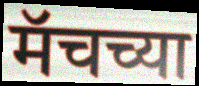
मॅचच्या